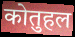
कोतुहल